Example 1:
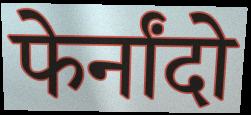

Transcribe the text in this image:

फेर्नांदो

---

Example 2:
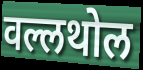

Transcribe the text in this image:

वल्लथोल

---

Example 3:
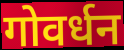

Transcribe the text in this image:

गोवर्धन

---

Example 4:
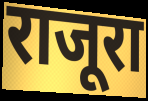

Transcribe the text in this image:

राजूरा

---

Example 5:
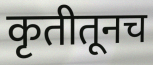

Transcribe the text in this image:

कृतीतूनच